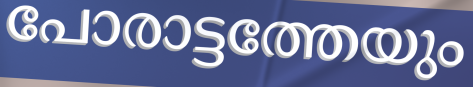
പോരാട്ടത്തേയും